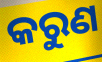
କରୁଣ